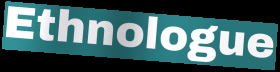
Ethnologue